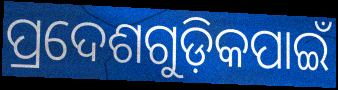
ପ୍ରଦେଶଗୁଡ଼ିକପାଇଁ